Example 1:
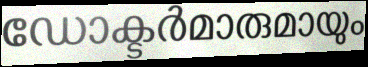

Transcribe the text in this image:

ഡോക്ടർമാരുമായും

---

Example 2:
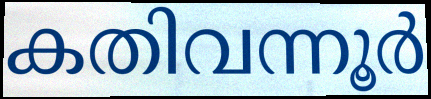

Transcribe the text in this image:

കതിവന്നൂർ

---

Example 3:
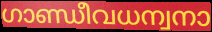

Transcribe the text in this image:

ഗാണ്ഡീവധന്വനാ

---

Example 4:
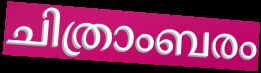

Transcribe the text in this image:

ചിത്രാംബരം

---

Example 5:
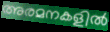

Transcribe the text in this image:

അരമനകളിൽ